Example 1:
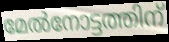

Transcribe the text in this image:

മേൽനോട്ടത്തിന്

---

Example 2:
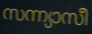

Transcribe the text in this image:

സന്ന്യാസീ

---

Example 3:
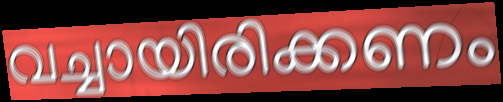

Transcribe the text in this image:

വച്ചായിരിക്കണം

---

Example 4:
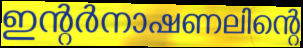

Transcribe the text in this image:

ഇന്റർനാഷണലിന്റെ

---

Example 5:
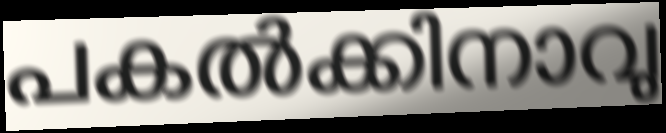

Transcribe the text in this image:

പകൽക്കിനാവു